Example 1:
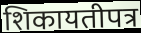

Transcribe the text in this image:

शिकायतीपत्र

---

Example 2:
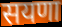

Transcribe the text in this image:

सयणा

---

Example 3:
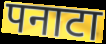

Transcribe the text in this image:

पनाटा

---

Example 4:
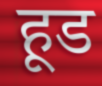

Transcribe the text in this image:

हूड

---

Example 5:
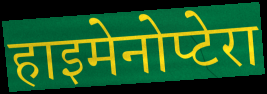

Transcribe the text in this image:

हाइमेनोप्टेरा